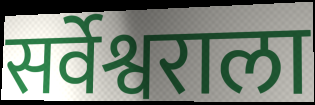
सर्वेश्वराला